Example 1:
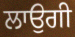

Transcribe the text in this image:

ਲਾਉਗੀ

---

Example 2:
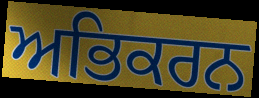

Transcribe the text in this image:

ਅਭਿਕਰਨ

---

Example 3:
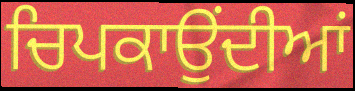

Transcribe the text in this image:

ਚਿਪਕਾਉਂਦੀਆਂ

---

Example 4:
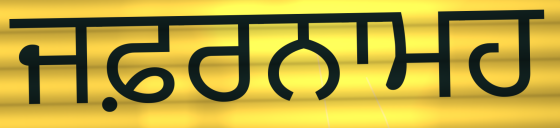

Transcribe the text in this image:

ਜਫ਼ਰਨਾਮਹ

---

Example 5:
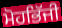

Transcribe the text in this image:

ਮੋਹਭਿੱਜੀ